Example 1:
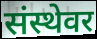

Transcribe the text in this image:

संस्थेवर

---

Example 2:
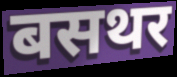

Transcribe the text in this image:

बसथर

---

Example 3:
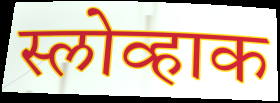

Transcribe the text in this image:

स्लोव्हाक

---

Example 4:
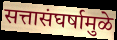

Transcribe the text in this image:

सत्तासंघर्षामुळे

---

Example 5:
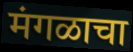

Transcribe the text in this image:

मंगळाचा